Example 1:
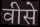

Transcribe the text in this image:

वीसे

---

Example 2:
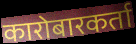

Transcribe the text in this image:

कारोबारकर्ता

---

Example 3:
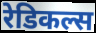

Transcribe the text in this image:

रेडिकल्स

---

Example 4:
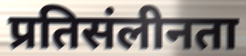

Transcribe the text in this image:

प्रतिसंलीनता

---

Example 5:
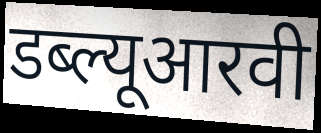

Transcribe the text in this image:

डब्ल्यूआरवी